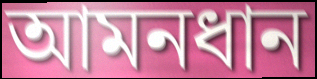
আমনধান